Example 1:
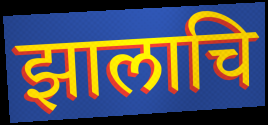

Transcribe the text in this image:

झालाचि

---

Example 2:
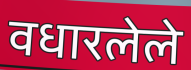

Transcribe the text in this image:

वधारलेले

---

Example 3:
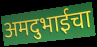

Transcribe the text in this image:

अमदुभाईचा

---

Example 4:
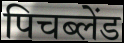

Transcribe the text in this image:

पिचब्लेंड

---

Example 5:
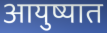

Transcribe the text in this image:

आयुष्यात